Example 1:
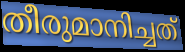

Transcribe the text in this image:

തീരുമാനിച്ചത്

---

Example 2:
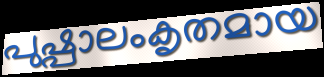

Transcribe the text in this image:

പുഷ്പാലംകൃതമായ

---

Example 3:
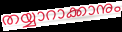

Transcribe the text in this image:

തയ്യാറാക്കാനും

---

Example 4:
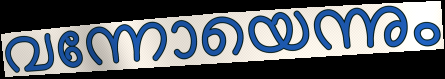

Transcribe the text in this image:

വന്നോയെന്നും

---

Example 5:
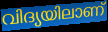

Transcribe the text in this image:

വിദ്യയിലാണ്